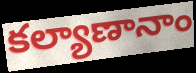
కల్యాణానాం